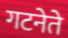
गटनेते